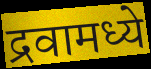
द्रवामध्ये